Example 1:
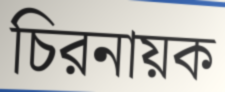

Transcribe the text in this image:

চিরনায়ক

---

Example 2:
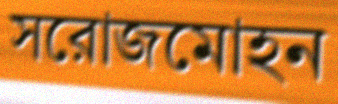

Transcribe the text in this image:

সরোজমোহন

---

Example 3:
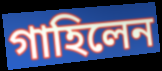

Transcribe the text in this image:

গাহিলেন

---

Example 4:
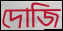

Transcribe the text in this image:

দোজি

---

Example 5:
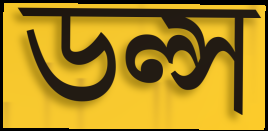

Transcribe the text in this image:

ডল্স